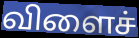
விளைச்